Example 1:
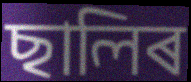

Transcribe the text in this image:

ছালিৰ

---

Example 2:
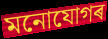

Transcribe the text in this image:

মনোযোগৰ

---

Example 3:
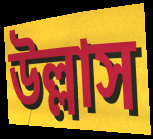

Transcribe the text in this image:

উল্লাস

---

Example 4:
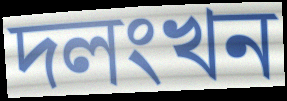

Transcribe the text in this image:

দলংখন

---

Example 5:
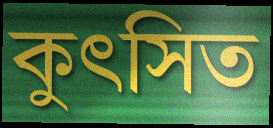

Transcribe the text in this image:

কুৎসিত